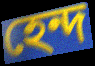
হেন্দ